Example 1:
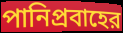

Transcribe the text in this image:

পানিপ্রবাহের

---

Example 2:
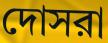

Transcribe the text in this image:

দোসরা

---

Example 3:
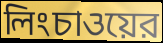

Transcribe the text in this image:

লিংচাওয়ের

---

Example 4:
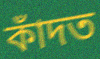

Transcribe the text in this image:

কাঁদত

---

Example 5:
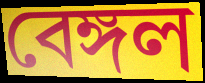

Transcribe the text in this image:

বেঙ্গল